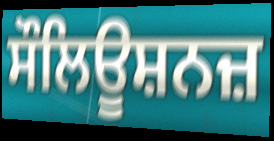
ਸੌਲਿਊਸ਼ਨਜ਼